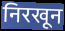
निरखून